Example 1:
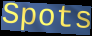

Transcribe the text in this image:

Spots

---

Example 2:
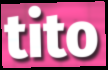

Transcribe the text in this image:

tito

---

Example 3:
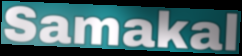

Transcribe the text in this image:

Samakal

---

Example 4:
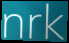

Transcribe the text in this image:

nrk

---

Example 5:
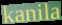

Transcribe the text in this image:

kanila